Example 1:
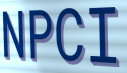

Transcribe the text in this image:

NPCI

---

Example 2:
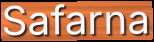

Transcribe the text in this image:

Safarna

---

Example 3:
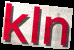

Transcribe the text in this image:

kln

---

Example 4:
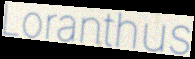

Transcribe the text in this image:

Loranthus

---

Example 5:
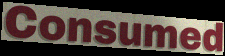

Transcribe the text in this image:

Consumed